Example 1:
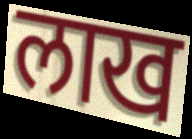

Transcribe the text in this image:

लाख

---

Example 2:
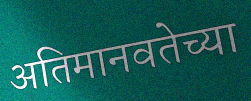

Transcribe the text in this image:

अतिमानवतेच्या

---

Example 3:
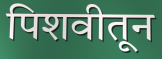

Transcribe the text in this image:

पिशवीतून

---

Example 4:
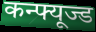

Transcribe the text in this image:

कन्फ्यूज्ड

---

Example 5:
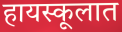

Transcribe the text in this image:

हायस्कूलात